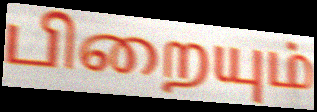
பிறையும்